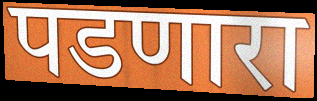
पडणारा